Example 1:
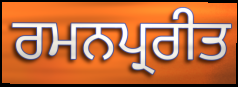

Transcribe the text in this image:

ਰਮਨਪ੍ਰਰੀਤ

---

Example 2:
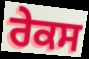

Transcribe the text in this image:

ਰੇਕਸ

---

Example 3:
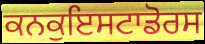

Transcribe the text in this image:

ਕਨਕੁਇਸਟਾਡੋਰਸ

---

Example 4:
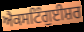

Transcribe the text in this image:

ਐਕਸਟਿੰਗੁਈਸ਼ਰ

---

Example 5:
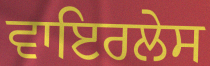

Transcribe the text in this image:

ਵਾਇਰਲੇਸ